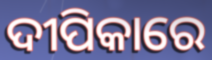
ଦୀପିକାରେ